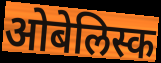
ओबेलिस्क